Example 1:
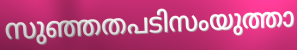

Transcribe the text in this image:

സുഞ്ഞതപടിസംയുത്താ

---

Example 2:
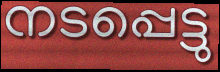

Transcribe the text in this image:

നടപ്പെട്ടു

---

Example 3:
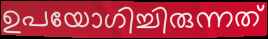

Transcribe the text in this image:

ഉപയോഗിച്ചിരുന്നത്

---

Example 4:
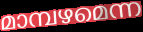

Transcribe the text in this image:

മാമ്പഴമെന്ന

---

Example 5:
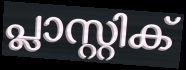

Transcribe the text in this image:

പ്ലാസ്റ്റിക്